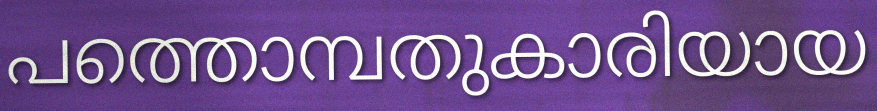
പത്തൊമ്പതുകാരിയായ